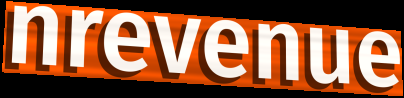
nrevenue